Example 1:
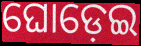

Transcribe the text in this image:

ଘୋଡ଼େଇ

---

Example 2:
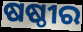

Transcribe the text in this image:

ଷଷ୍ଠୀର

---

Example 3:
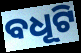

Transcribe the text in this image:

ବଧୂଟି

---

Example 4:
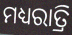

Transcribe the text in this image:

ମଧ୍ଯରାତ୍ରି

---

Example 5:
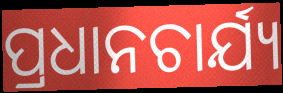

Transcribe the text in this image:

ପ୍ରଧାନଚାର୍ଯ୍ୟ